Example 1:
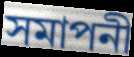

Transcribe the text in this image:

সমাপনী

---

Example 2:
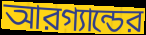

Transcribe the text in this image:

আরগ্যান্ডের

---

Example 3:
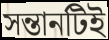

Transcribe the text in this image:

সন্তানটিই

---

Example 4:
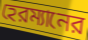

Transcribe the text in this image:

হেরম্যানের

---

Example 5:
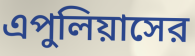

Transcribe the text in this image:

এপুলিয়াসের